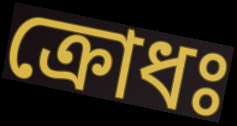
ক্রোধঃ